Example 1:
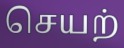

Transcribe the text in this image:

செயற்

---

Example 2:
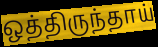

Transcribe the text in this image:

ஒத்திருந்தாய்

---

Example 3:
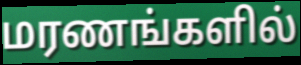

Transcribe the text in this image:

மரணங்களில்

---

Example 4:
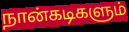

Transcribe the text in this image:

நான்கடிகளும்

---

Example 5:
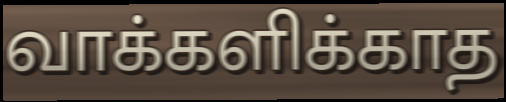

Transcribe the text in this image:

வாக்களிக்காத